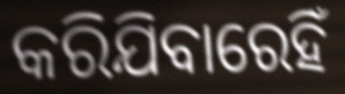
କରିଯିବାରେହିଁ